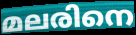
മലരിനെ